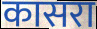
कासरा